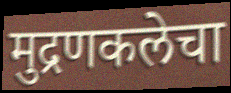
मुद्रणकलेचा